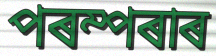
পৰম্পৰাৰ